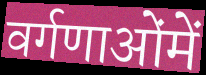
वर्गणाओंमें